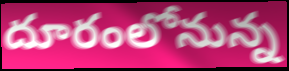
దూరంలోనున్న